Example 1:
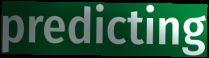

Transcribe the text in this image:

predicting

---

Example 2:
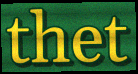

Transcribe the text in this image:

thet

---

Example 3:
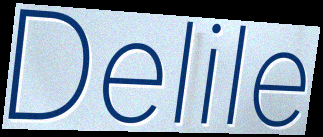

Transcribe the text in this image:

Delile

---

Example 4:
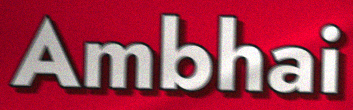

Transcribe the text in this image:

Ambhai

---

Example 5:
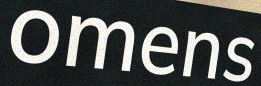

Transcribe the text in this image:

omens